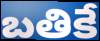
బతికే